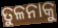
ତୁଳନାକୁ